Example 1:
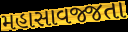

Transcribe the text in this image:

મહાસાવજ્જતા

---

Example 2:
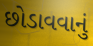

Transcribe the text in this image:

છોડાવવાનું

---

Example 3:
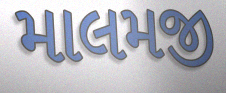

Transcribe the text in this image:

માલમજી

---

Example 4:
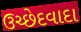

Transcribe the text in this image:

ઉચ્છેદવાદા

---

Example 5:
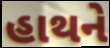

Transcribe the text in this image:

હાથને